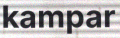
kampar